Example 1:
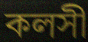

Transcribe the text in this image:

কলসী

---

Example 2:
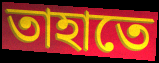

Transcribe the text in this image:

তাহাতে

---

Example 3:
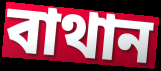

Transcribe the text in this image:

বাথান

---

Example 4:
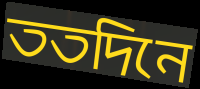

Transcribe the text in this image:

ততদিনে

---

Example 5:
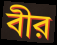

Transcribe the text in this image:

বীর